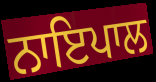
ਨਾਇਪਾਲ